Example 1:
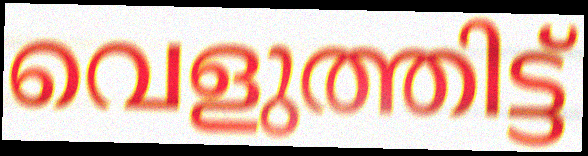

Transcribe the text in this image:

വെളുത്തിട്ട്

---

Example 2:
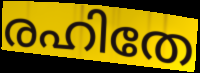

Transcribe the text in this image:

രഹിതേ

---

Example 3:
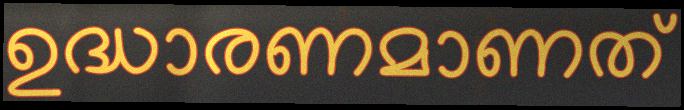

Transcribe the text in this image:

ഉദ്ധാരണമാണത്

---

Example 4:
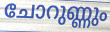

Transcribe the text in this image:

ചോറുണ്ണും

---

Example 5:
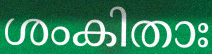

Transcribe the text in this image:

ശംകിതാഃ